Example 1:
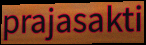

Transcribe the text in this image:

prajasakti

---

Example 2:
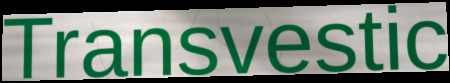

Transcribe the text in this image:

Transvestic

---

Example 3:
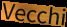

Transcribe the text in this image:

Vecchi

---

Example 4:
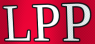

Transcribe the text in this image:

LPP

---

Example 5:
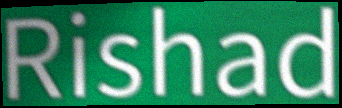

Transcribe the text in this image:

Rishad